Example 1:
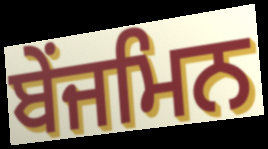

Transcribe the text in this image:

ਬੇਂਜਮਿਨ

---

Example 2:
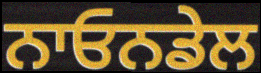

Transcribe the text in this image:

ਨਾਓਨਡੇਲ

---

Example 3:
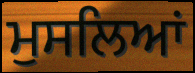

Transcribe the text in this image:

ਮੁਸਲਿਆਂ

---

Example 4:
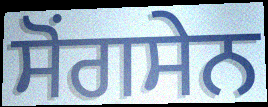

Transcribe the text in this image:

ਸੋਂਗਸੇਨ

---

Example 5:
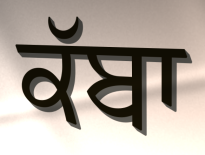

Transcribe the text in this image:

ਕੱਬਾ